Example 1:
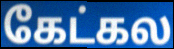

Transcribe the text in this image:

கேட்கல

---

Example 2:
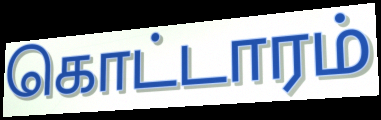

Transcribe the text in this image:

கொட்டாரம்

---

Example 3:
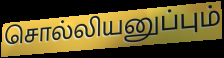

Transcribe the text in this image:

சொல்லியனுப்பும்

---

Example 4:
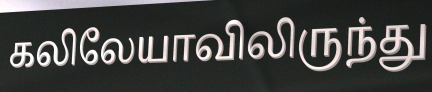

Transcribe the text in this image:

கலிலேயாவிலிருந்து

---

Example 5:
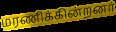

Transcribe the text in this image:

மரணிக்கின்றனர்